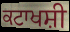
ਕਟਾਖਸ਼ੀ